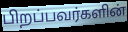
பிறப்பவர்களின்